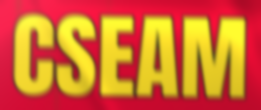
CSEAM